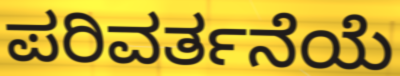
ಪರಿವರ್ತನೆಯೆ